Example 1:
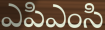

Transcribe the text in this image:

ఎపిఎంసి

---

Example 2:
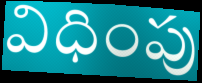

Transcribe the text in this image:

విధింపు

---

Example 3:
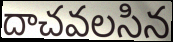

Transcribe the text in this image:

దాచవలసిన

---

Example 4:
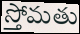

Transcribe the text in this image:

స్తోమతు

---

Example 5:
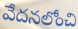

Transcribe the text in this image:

వేదనలోంచి